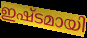
ഇഷ്ടമായി